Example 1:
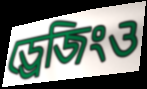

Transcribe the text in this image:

ড্রেজিংও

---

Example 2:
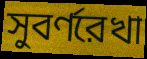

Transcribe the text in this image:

সুবর্ণরেখা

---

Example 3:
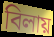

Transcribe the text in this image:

বিলায়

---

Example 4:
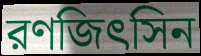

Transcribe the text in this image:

রণজিৎসিন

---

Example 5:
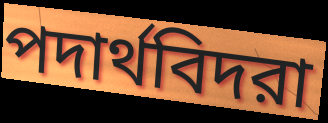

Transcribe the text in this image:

পদার্থবিদরা